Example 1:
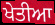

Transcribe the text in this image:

ਖੇਤੀਆ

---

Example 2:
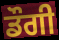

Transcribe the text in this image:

ਡੌਗੀ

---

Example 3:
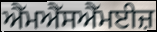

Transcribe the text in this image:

ਐੱਮਐੱਸਐੱਮਈਜ਼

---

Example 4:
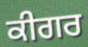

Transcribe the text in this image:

ਕੀਗਰ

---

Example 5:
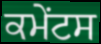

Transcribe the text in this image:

ਕਮੇੰਟਸ